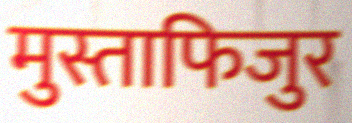
मुस्ताफिजुर